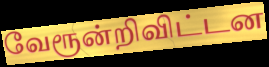
வேரூன்றிவிட்டன